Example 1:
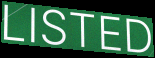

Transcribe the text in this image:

LISTED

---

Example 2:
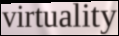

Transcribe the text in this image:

virtuality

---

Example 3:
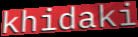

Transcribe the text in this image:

khidaki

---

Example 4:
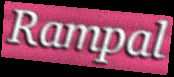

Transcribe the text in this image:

Rampal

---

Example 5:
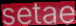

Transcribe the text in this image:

setae